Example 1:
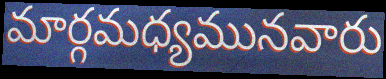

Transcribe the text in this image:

మార్గమధ్యమునవారు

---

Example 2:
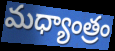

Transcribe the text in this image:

మధ్యాంత్రం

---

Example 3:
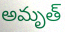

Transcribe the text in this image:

అమృత్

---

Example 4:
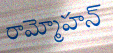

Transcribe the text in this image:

రామ్మోహన్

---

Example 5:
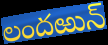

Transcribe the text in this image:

లందఱున్